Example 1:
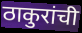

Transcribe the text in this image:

ठाकुरांची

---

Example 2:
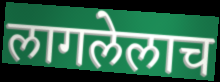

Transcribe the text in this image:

लागलेलाच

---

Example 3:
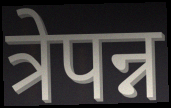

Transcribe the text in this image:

त्रेपन्न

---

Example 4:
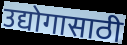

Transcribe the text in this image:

उद्योगासाठी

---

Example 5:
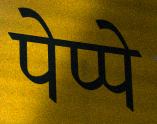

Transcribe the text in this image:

पेप्पे